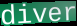
diver